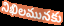
నిఖిలమునకు